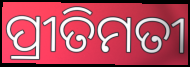
ପ୍ରୀତିମତୀ